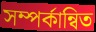
সম্পর্কান্বিত